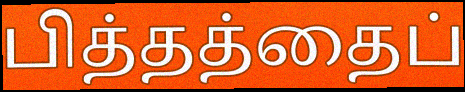
பித்தத்தைப்